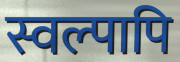
स्वल्पापि